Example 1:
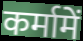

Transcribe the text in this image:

कर्मामें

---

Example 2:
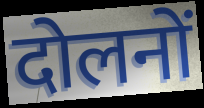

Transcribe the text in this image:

दोलनों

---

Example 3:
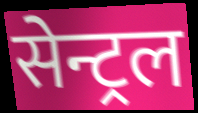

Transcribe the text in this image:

सेन्ट्रल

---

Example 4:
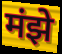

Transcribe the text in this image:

मंझे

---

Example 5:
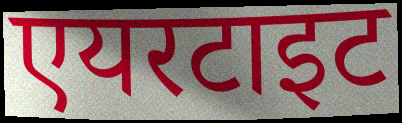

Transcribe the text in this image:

एयरटाइट